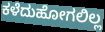
ಕಳೆದುಹೋಗಲಿಲ್ಲ